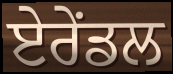
ਏਰੇਂਡਲ